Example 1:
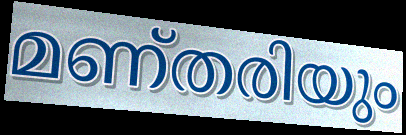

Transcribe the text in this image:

മണ്തരിയും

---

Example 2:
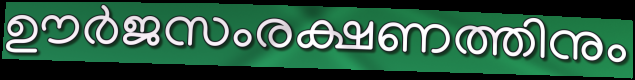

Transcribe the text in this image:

ഊർജസംരക്ഷണത്തിനും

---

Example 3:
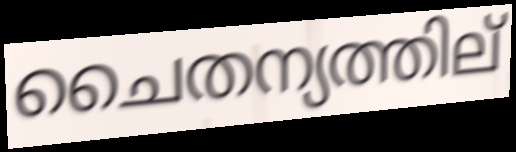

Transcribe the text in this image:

ചൈതന്യത്തില്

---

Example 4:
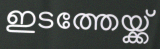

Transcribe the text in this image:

ഇടത്തേയ്ക്ക്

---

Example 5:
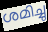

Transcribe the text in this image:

ശമിച്ചു